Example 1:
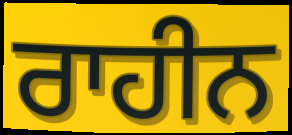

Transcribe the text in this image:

ਰਾਹੀਨ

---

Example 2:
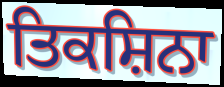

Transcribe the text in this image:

ਤਿਕਸ਼ਿਨਾ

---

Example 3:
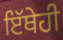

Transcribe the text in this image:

ਇੱਥੇਹੀ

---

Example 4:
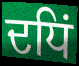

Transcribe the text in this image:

ਦਧਿਂ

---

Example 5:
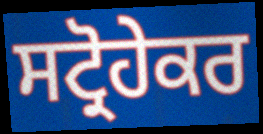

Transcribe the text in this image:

ਸਟ੍ਰੋਹੇਕਰ